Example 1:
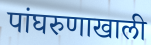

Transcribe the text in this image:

पांघरुणाखाली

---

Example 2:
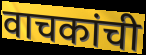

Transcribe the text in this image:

वाचकांची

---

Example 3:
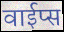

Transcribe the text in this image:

वाईप्स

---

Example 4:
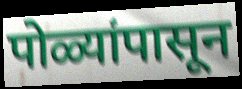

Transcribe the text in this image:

पोळ्यांपासून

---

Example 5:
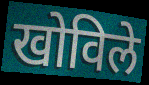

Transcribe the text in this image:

खोविले